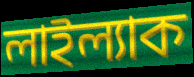
লাইল্যাক